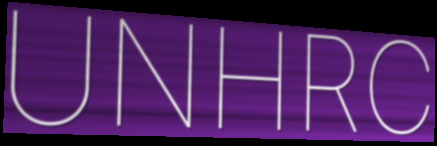
UNHRC